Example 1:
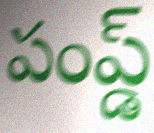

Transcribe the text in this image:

పంప్డ్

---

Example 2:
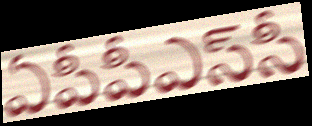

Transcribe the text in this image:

ఏపీపీఎస్‌సీ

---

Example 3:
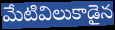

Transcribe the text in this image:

మేటివిలుకాడైన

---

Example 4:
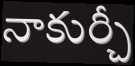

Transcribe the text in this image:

నాకుర్చీ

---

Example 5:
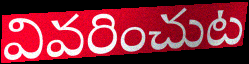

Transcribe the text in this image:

వివరించుట